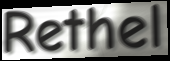
Rethel